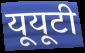
यूयूटी